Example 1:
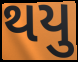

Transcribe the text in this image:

થયુ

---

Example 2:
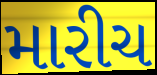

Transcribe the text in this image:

મારીચ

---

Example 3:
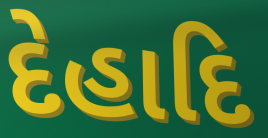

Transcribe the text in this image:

દેહાદિ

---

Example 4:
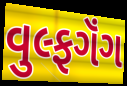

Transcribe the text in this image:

વુલ્ફગૅંગ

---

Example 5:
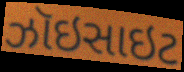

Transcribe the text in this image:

ઝૉઇસાઇટ